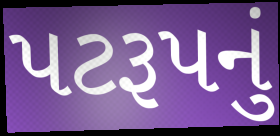
પટરૂપનું